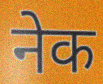
नेक